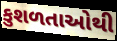
કુશળતાઓથી